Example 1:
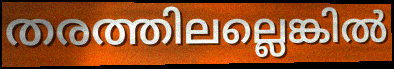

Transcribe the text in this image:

തരത്തിലല്ലെങ്കിൽ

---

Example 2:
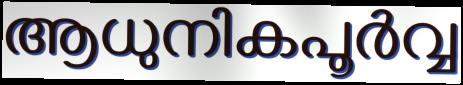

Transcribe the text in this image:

ആധുനികപൂർവ്വ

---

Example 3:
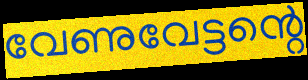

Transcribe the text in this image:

വേണുവേട്ടന്റെ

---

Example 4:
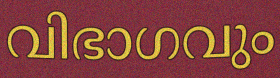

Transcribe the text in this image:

വിഭാഗവും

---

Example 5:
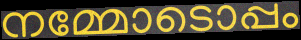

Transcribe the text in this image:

നമ്മോടൊപ്പം